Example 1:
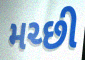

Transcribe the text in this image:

મચ્છી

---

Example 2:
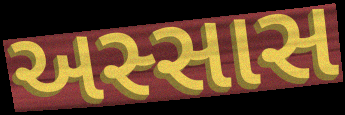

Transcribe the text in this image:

અસ્સાસ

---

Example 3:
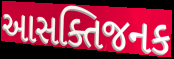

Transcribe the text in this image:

આસક્તિજનક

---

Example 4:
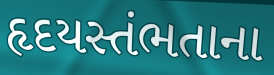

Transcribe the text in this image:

હૃદયસ્તંભતાના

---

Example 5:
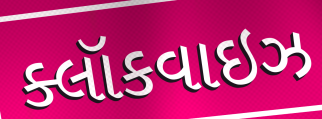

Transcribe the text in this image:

ક્લૉકવાઇઝ